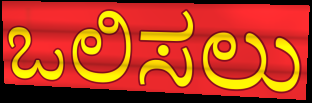
ಒಲಿಸಲು